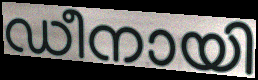
ഡീനായി